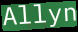
Allyn